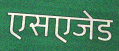
एसएजेड